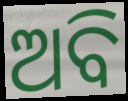
ଅବି